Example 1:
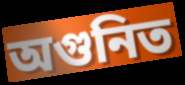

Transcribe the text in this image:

অগুনিত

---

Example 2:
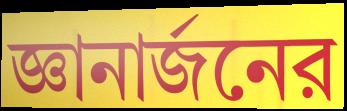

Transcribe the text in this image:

জ্ঞানার্জনের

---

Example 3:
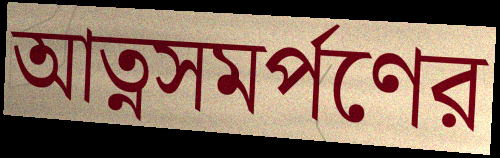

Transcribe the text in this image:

আত্নসমর্পণের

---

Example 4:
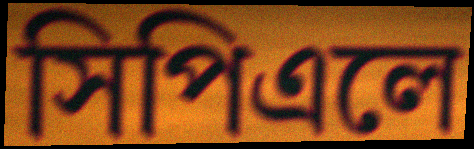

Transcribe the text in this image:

সিপিএলে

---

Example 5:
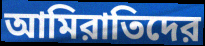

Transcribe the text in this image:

আমিরাতিদের